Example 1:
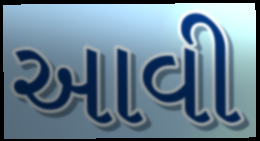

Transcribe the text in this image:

આવી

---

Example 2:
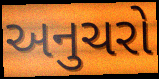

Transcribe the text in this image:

અનુચરો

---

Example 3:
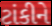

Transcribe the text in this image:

ટાંકીને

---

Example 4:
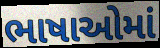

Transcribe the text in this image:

ભાષાઓમાં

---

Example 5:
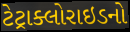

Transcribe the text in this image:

ટેટ્રાક્લોરાઇડનો